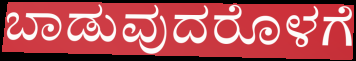
ಬಾಡುವುದರೊಳಗೆ